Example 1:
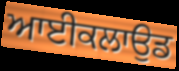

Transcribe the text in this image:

ਆਈਕਲਾਉਡ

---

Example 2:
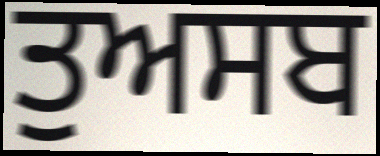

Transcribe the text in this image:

ਤੁਅਸਬ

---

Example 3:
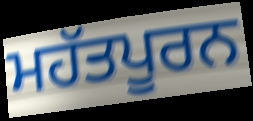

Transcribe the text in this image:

ਮਹੱਤਪੂਰਨ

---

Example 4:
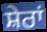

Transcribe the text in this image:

ਸ਼ੇਰਾਂ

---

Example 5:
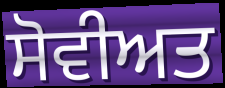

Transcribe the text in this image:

ਸੋਵੀਅਤ